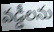
వడ్డీలను